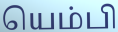
யெம்பி